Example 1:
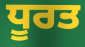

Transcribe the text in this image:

ਧੂਰਤ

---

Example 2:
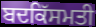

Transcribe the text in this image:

ਬਦਕਿੱਸਮਤੀ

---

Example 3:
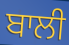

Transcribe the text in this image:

ਬਾਲੀ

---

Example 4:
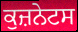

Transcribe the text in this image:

ਕੁਜ਼ਨੇਟਸ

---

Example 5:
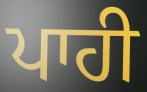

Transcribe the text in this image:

ਪਾਹੀ